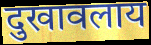
दुखावलाय